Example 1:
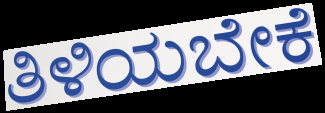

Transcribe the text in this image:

ತಿಳಿಯಬೇಕೆ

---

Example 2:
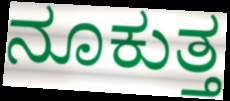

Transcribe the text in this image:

ನೂಕುತ್ತ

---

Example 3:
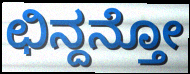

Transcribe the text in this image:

ಛಿನ್ದನ್ತೋ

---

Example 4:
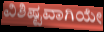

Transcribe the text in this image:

ವಿಶಿಷ್ಟವಾಗಿಯೇ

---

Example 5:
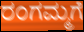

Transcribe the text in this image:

ರಂಗಮ್ಮಗೆ